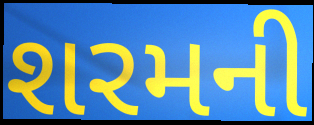
શરમની